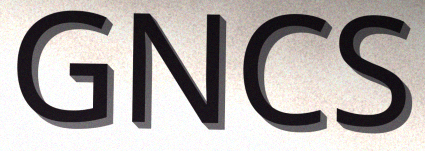
GNCS